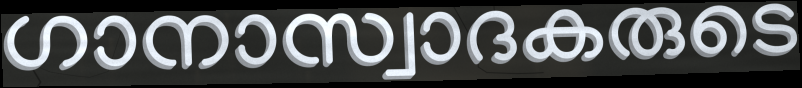
ഗാനാസ്വാദകരുടെ